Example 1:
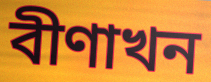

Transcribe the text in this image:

বীণাখন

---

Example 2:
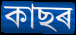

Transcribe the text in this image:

কাছৰ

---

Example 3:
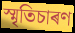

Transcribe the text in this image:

স্মৃতিচাৰণ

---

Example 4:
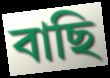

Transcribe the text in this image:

বাছি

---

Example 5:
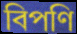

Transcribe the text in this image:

বিপণি